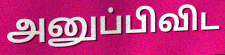
அனுப்பிவிட